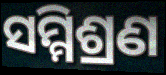
ସମ୍ମିଶ୍ରଣ